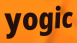
yogic